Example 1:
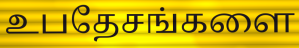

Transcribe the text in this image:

உபதேசங்களை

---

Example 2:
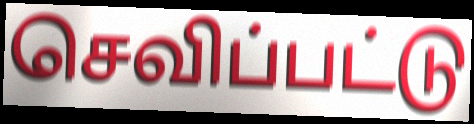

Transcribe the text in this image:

செவிப்பட்டு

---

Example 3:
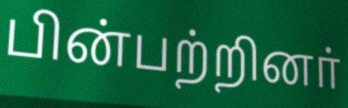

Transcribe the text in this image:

பின்பற்றினர்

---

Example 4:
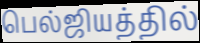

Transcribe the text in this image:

பெல்ஜியத்தில்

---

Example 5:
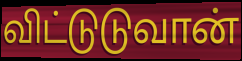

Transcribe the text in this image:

விட்டுடுவான்